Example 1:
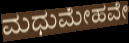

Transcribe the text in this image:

ಮಧುಮೇಹವೇ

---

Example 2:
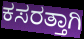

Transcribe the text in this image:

ಕಸರತ್ತಾಗಿ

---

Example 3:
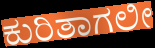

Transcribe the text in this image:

ಕುರಿತಾಗಲೀ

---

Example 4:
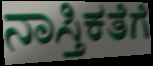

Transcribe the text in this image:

ನಾಸ್ತಿಕತೆಗೆ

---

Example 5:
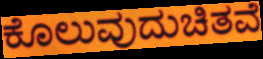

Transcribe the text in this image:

ಕೊಲುವುದುಚಿತವೆ